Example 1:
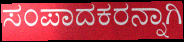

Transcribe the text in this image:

ಸಂಪಾದಕರನ್ನಾಗಿ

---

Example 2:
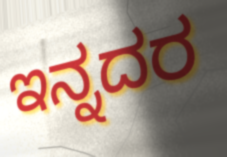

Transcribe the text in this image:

ಇನ್ನದರ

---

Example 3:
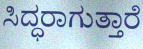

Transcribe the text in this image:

ಸಿದ್ಧರಾಗುತ್ತಾರೆ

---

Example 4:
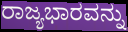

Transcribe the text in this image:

ರಾಜ್ಯಭಾರವನ್ನು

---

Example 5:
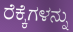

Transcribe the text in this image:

ರೆಕ್ಕೆಗಳನ್ನು